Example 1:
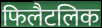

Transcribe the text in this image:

फिलैटलिक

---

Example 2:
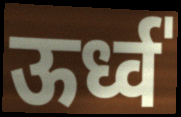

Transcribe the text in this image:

ऊर्ध्व॑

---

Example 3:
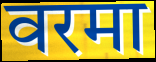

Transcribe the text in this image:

वरमा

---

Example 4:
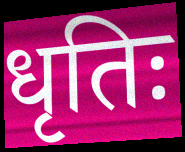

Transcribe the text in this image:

धृतिः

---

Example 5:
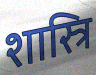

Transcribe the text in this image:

शास्त्रि